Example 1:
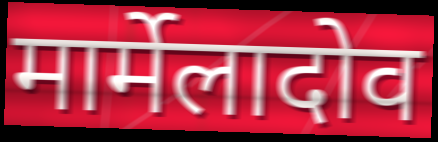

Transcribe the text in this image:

मार्मेलादोव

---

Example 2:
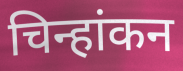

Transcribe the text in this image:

चिन्हांकन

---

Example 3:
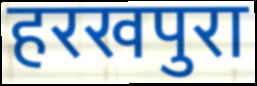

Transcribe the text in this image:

हरखपुरा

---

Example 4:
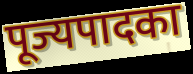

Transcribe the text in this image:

पूज्यपादका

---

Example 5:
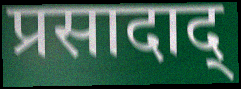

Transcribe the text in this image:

प्रसादाद्